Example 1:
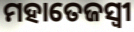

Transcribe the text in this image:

ମହାତେଜସ୍ୱୀ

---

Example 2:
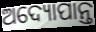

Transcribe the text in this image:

ଅଦ୍ୟୋପାନ୍ତ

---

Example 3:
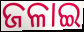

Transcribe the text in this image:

ଜଳାଇ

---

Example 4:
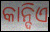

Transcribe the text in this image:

କାନ୍ଦିଏ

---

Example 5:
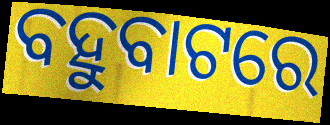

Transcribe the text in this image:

ବହୁବାଟରେ